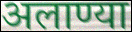
अलाण्या